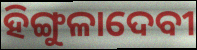
ହିଙ୍ଗୁଳାଦେବୀ